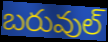
బరువుల్